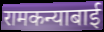
रामकन्याबाई